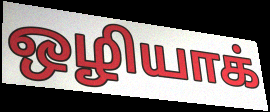
ஒழியாக்